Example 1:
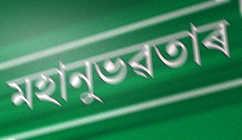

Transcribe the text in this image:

মহানুভৱতাৰ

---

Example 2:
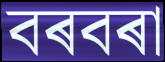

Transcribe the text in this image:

বৰবৰা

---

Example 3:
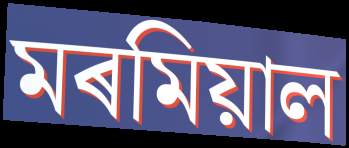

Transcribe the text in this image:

মৰমিয়াল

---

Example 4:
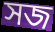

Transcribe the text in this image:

সজ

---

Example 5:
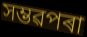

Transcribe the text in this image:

সম্ভৱপৰা